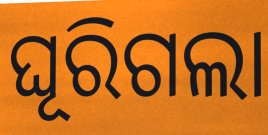
ଘୂରିଗଲା